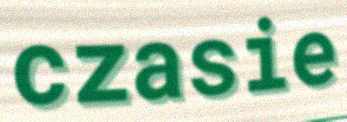
czasie